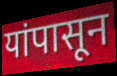
यांपासून